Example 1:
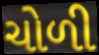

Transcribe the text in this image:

ચોળી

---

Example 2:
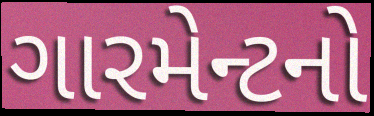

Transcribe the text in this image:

ગારમેન્ટનો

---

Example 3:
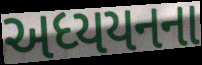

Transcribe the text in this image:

અધ્યયનના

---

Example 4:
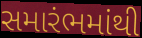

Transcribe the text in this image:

સમારંભમાંથી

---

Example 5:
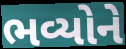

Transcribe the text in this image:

ભવ્યોને